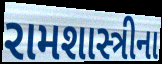
રામશાસ્ત્રીના